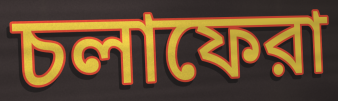
চলাফেরা